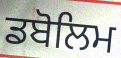
ਡਬੋਲਿਮ